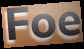
Foe